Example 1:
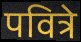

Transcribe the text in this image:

पवित्रे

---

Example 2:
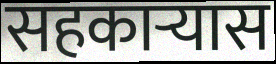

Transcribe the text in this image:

सहकार्‍यास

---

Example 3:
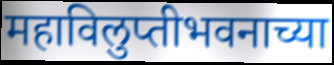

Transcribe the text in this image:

महाविलुप्तीभवनाच्या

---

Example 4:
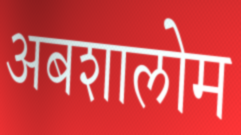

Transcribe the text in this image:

अबशालोम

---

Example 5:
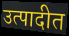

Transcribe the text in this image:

उत्पादीत